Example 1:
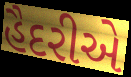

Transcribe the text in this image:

હૈદરીએ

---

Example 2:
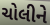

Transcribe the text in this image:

ચોલીને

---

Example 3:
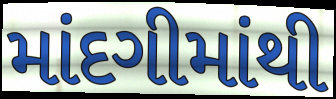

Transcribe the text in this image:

માંદગીમાંથી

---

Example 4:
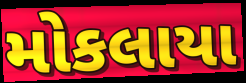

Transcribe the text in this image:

મોકલાયા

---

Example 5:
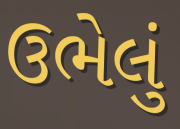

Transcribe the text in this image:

ઉભેલું